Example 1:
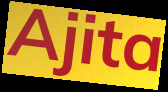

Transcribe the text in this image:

Ajita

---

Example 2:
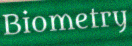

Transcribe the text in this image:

Biometry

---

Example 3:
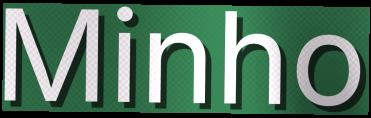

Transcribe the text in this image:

Minho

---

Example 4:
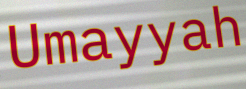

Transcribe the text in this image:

Umayyah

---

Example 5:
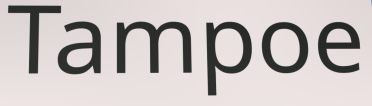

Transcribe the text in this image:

Tampoe